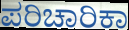
ಪರಿಚಾರಿಕಾ